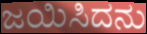
ಜಯಿಸಿದನು